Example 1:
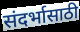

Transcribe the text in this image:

संदर्भासाठी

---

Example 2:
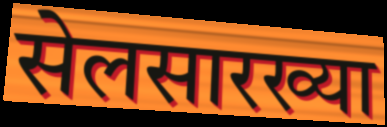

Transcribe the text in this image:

सेलसारख्या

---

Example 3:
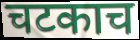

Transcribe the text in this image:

चटकाच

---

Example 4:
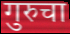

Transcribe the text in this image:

गुरुचा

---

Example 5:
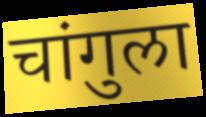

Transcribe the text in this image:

चांगुला